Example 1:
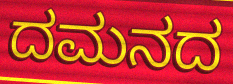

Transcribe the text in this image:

ದಮನದ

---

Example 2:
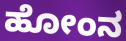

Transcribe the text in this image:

ಹೋಂನ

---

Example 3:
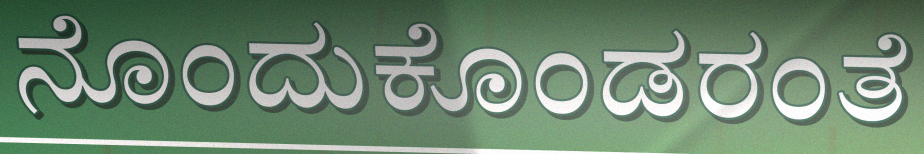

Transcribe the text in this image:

ನೊಂದುಕೊಂಡರಂತೆ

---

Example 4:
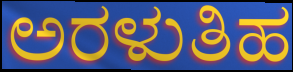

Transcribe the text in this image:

ಅರಳುತಿಹ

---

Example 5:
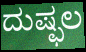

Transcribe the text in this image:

ದುಷ್ಫಲ